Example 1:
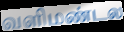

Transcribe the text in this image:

வளிமண்டல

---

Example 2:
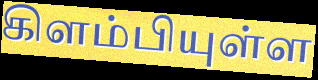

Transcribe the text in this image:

கிளம்பியுள்ள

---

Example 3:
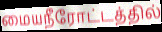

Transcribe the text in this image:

மையநீரோட்டத்தில்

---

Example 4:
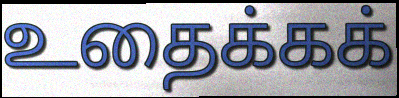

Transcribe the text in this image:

உதைக்கக்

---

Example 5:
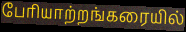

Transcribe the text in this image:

பேரியாற்றங்கரையில்